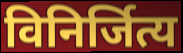
विनिर्जित्य